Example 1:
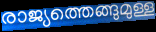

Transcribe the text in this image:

രാജ്യത്തെങ്ങുമുള്ള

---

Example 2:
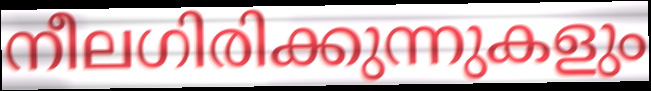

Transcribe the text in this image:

നീലഗിരിക്കുന്നുകളും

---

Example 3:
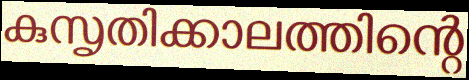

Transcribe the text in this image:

കുസൃതിക്കാലത്തിന്റെ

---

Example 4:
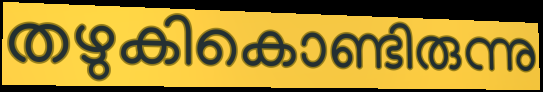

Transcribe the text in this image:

തഴുകികൊണ്ടിരുന്നു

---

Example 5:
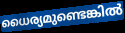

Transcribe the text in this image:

ധൈര്യമുണ്ടെങ്കിൽ